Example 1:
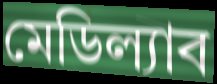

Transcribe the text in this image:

মেডিল্যাব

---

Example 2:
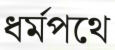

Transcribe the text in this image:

ধর্মপথে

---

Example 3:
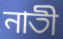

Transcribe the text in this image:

নাতী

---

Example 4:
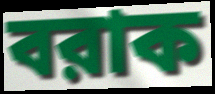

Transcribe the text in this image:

বরাক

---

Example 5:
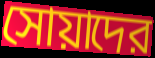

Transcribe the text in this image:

সোয়াদের